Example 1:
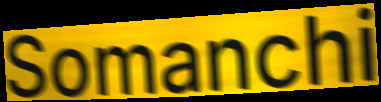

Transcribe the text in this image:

Somanchi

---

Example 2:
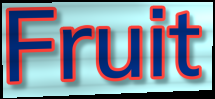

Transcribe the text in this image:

Fruit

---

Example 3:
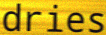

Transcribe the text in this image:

dries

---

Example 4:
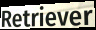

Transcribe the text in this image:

Retriever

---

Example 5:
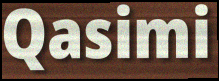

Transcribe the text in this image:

Qasimi